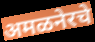
अमळनेरचे